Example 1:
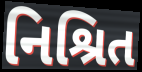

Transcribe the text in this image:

નિશ્રિત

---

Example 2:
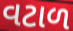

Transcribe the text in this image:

વટાળ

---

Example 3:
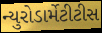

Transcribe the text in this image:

ન્યુરોડાર્મેટીટીસ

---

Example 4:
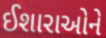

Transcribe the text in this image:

ઈશારાઓને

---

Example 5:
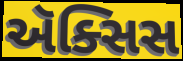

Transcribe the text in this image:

ઍક્સિસ